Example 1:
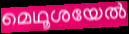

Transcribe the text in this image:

മെഥൂശയേൽ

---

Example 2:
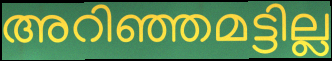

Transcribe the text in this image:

അറിഞ്ഞമട്ടില്ല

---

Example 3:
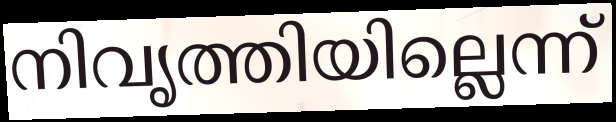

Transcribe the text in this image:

നിവൃത്തിയില്ലെന്ന്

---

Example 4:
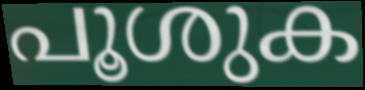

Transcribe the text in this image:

പൂശുക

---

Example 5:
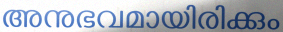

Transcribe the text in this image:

അനുഭവമായിരിക്കും